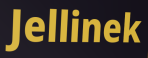
Jellinek